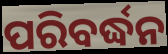
ପରିବର୍ଦ୍ଧନ